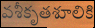
వశీకృతశూలికి